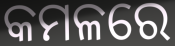
କମଳରେ